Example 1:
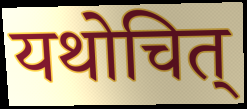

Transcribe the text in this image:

यथोचित्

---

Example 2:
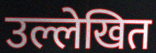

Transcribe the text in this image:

उल्‍लेखित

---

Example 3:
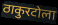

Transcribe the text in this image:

ठाकुरटोला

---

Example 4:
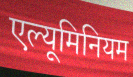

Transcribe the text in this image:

एल्यूमिनियम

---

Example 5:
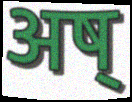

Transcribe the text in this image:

अष्